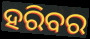
ହରିବର